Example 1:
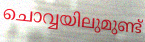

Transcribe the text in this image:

ചൊവ്വയിലുമുണ്ട്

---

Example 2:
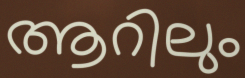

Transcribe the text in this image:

ആറിലും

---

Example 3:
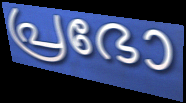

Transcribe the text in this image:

പ്രഭോ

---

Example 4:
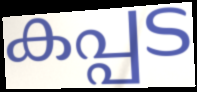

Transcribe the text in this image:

കപ്പട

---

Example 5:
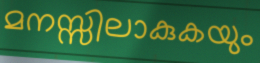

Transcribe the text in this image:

മനസ്സിലാകുകയും